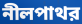
নীলপাথর